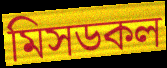
মিসডকল